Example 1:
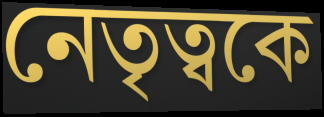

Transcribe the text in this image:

নেতৃত্বকে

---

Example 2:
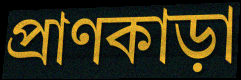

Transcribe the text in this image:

প্রাণকাড়া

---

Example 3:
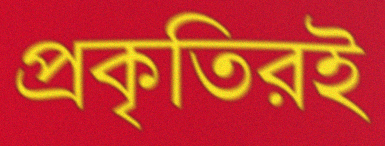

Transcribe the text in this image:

প্রকৃতিরই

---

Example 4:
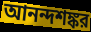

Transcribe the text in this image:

আনন্দশঙ্কর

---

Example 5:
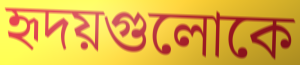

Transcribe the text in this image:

হৃদয়গুলোকে